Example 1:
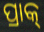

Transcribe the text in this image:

ପ୍ରାକ୍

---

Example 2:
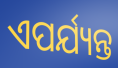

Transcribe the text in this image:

ଏପର୍ଯ୍ୟନ୍ତ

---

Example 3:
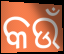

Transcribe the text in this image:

କଉଁ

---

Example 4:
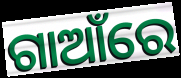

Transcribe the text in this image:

ଗାଆଁରେ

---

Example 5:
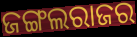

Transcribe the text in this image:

ଜଙ୍ଗଲରାଜର